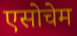
एसोचेम